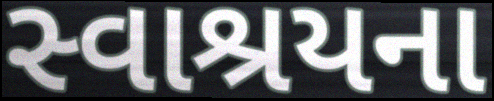
સ્વાશ્રયના